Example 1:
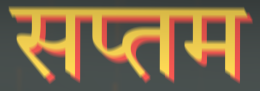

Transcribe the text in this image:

सप्तम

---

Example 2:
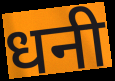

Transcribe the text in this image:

धनी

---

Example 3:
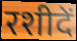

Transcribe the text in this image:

रशीदें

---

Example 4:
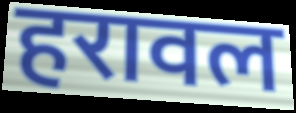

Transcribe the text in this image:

हरावल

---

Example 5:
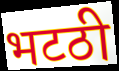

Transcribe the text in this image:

भटठी